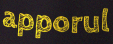
apporul